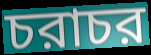
চরাচর